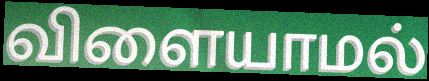
விளையாமல்